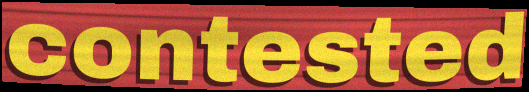
contested